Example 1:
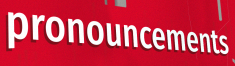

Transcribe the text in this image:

pronouncements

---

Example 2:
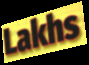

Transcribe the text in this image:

Lakhs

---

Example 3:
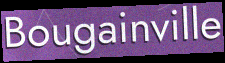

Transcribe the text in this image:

Bougainville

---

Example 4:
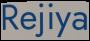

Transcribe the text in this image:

Rejiya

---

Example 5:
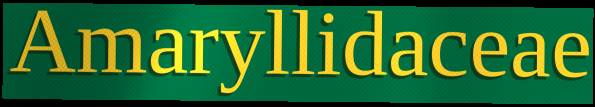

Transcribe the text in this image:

Amaryllidaceae